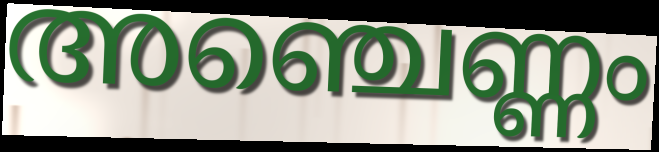
അഞ്ചെണ്ണം